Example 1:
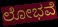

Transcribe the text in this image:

ಲೋಭವೆ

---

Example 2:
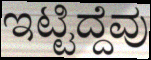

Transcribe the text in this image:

ಇಟ್ಟಿದ್ದೆವು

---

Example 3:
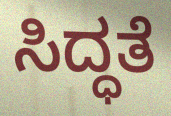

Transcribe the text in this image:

ಸಿದ್ಧತೆ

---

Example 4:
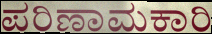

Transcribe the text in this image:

ಪರಿಣಾಮಕಾರಿ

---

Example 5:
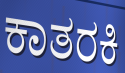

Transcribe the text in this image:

ಕಾತರಕಿ